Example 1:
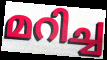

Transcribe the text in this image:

മറിച്ച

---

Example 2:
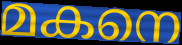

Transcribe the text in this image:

മകനെ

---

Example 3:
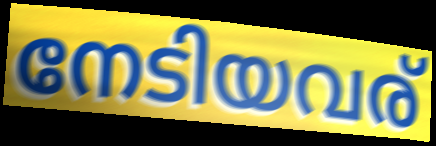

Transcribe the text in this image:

നേടിയവര്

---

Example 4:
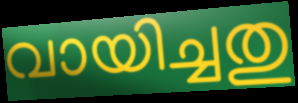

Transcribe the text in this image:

വായിച്ചതു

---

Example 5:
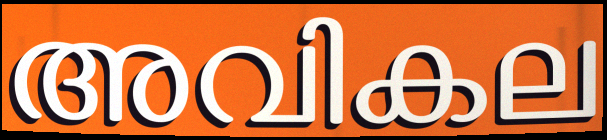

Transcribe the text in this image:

അവികല